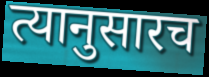
त्यानुसारच